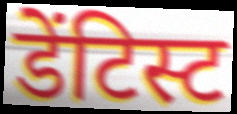
डेंटिस्ट